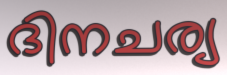
ദിനചര്യ